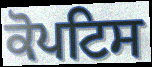
ਕੋਪਟਿਸ